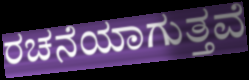
ರಚನೆಯಾಗುತ್ತವೆ